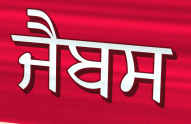
ਜੈਬਸ